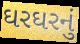
ઘરઘરનું